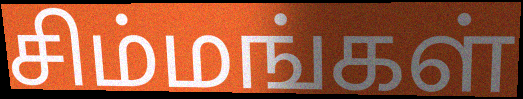
சிம்மங்கள்